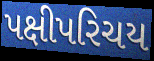
પક્ષીપરિચય